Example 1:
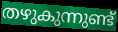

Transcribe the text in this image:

തഴുകുന്നുണ്ട്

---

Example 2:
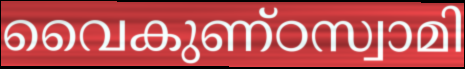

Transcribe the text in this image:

വൈകുണ്ഠസ്വാമി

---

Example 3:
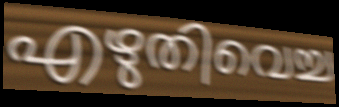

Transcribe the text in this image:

എഴുതിവെച്ച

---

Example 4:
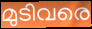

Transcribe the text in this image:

മുടിവരെ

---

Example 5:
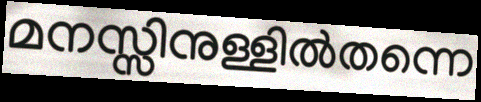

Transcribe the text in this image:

മനസ്സിനുള്ളിൽതന്നെ